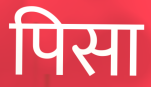
पिसा